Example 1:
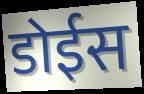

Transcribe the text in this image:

डोईस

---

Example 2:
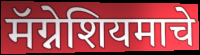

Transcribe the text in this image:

मॅग्नेशियमाचे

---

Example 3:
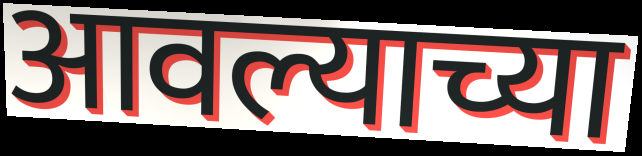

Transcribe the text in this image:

आवल्याच्या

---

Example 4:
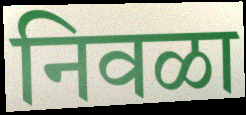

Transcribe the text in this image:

निवळा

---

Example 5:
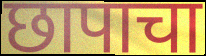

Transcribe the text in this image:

छापाचा